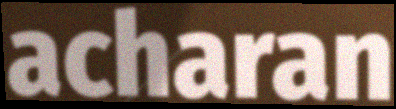
acharan